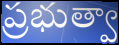
ప్రభుత్వా